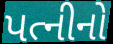
પત્નીનો